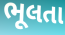
ભૂલતા